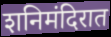
शनिमंदिरात